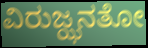
ವಿರುಜ್ಝನತೋ